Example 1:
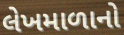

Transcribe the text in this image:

લેખમાળાનો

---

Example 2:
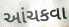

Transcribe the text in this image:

આંચકવા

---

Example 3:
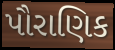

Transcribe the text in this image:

પૌરાણિક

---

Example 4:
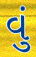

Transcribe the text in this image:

વું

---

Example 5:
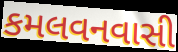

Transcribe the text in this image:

કમલવનવાસી